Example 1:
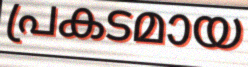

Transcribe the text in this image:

പ്രകടമായ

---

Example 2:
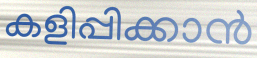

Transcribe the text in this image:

കളിപ്പിക്കാൻ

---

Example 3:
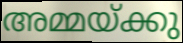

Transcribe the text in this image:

അമ്മയ്ക്കു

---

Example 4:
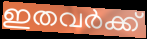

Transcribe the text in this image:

ഇതവർക്ക്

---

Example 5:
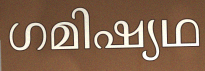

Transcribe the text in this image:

ഗമിഷ്യഥ